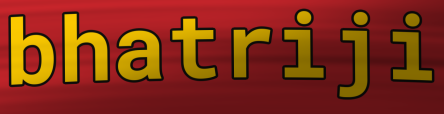
bhatriji